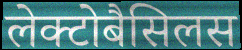
लेक्टोबैसिलस